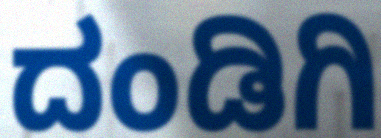
ದಂಡಿಗಿ